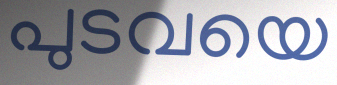
പുടവയെ